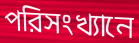
পরিসংখ্যানে